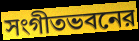
সংগীতভবনের